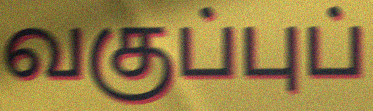
வகுப்புப்